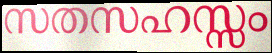
സതസഹസ്സം